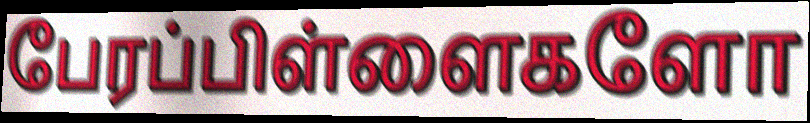
பேரப்பிள்ளைகளோ